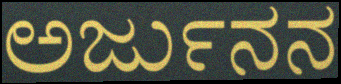
ಅರ್ಜುನನ